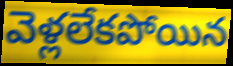
వెళ్లలేకపోయిన